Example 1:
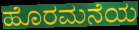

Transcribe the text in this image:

ಹೊರಮನೆಯ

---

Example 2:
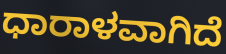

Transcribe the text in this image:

ಧಾರಾಳವಾಗಿದೆ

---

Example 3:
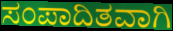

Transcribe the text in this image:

ಸಂಪಾದಿತವಾಗಿ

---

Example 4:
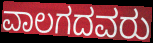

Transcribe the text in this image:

ವಾಲಗದವರು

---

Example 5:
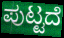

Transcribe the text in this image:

ಪುಟ್ಟದೆ